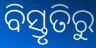
ବିସ୍ତୃତିରୁ